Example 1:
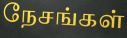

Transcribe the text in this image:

நேசங்கள்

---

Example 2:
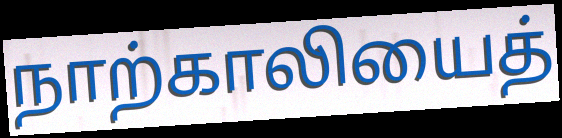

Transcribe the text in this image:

நாற்காலியைத்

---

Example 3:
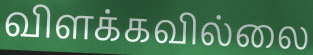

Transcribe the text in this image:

விளக்கவில்லை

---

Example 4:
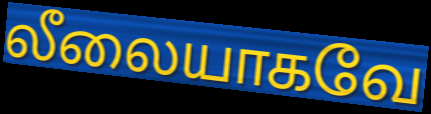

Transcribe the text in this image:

லீலையாகவே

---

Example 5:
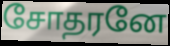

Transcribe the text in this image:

சோதரனே